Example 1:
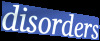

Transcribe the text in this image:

disorders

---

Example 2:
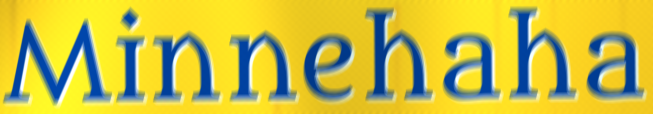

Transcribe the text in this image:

Minnehaha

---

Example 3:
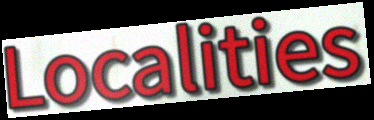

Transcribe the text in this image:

Localities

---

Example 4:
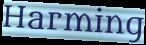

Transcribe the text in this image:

Harming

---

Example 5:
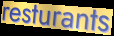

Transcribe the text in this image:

resturants